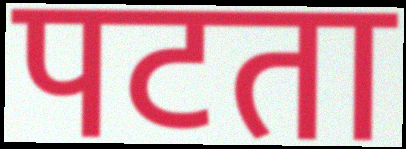
पटता